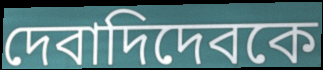
দেবাদিদেবকে